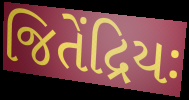
જિતેંદ્રિયઃ